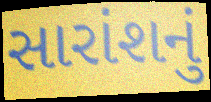
સારાંશનું